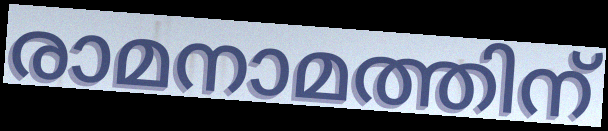
രാമനാമത്തിന്